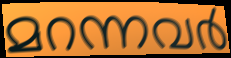
മറന്നവർ